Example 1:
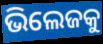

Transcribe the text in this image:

ଭିଲେଜକୁ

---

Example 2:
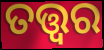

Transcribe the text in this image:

ତତ୍ତ୍ବର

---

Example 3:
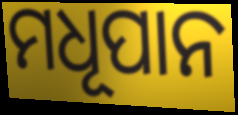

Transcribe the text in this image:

ମଧୂପାନ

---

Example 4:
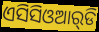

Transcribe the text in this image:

ଏସିସିଓଆର୍‌ଡି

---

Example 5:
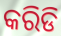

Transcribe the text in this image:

କରିଡି